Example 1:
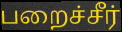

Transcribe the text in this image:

பறைச்சீர்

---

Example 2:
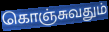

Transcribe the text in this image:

கொஞ்சுவதும்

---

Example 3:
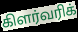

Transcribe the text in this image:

கிளர்வரிக்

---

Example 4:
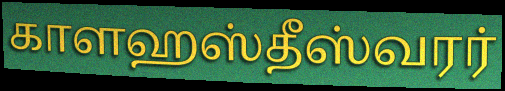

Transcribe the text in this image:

காளஹஸ்தீஸ்வரர்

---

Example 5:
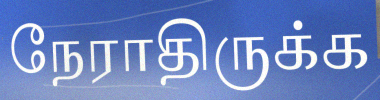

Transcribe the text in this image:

நேராதிருக்க